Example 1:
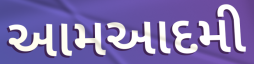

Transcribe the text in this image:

આમઆદમી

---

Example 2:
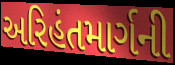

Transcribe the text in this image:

અરિહંતમાર્ગની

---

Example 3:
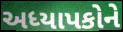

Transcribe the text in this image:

અધ્યાપકોને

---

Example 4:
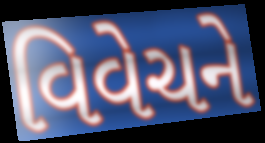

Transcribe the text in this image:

વિવેચને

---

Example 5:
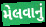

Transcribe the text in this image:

મેલવાનું